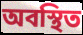
অবস্থিত